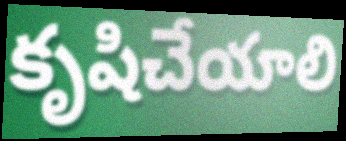
కృషిచేయాలి